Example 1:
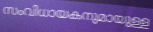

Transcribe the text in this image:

സംവിധായകനുമായുള്ള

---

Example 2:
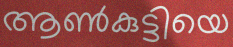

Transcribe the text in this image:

ആൺകുട്ടിയെ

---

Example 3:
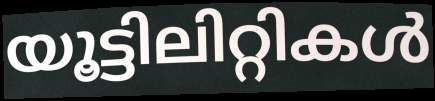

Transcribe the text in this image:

യൂട്ടിലിറ്റികൾ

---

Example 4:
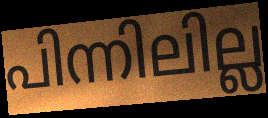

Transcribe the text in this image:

പിന്നിലില്ല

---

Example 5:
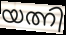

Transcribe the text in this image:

യത്നി